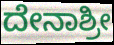
ದೇನಾಶ್ರೀ